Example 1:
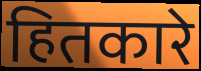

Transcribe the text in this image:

हितकारे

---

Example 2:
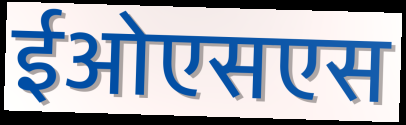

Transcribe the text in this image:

ईओएसएस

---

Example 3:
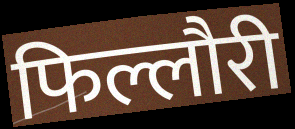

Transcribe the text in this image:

फिल्लौरी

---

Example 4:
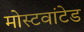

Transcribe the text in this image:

मोस्टवांटेड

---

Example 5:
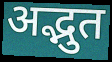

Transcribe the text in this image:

अद्भुत